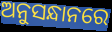
ଅନୁସନ୍ଧାନରେ